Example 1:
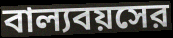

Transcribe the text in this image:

বাল্যবয়সের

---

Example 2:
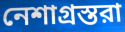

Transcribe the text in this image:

নেশাগ্রস্তরা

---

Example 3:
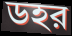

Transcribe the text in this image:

ডহর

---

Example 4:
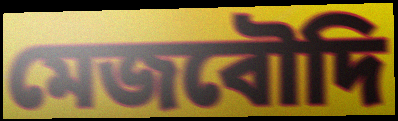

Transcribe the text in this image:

মেজবৌদি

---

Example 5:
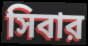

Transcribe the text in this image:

সিবার